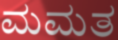
ಮಮತ